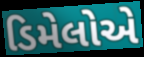
ડિમેલોએ